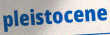
pleistocene